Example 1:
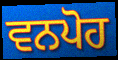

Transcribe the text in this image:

ਵਨਪੋਹ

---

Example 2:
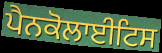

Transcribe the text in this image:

ਪੈਨਕੋਲਾਈਟਿਸ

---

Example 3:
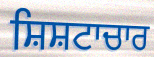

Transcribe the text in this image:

ਸ਼ਿਸ਼ਟਾਚਾਰ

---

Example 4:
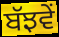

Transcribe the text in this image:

ਬੱਝਵੇਂ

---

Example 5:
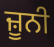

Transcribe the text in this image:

ਜ਼ੂਨੀ